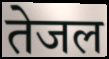
तेजल